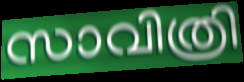
സാവിത്രി